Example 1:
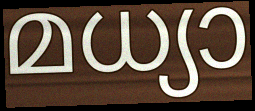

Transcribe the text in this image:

മധ്യാ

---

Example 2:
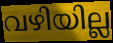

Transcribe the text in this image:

വഴിയില്ല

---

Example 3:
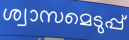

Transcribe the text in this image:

ശ്വാസമെടുപ്പ്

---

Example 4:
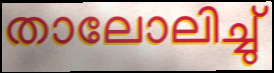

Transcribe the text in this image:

താലോലിച്ചു്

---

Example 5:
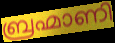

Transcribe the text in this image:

ബ്രഹ്മാണി